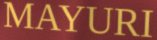
MAYURI